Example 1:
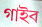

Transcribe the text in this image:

গাইব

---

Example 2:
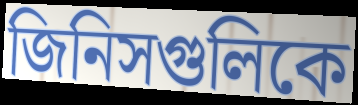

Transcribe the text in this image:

জিনিসগুলিকে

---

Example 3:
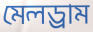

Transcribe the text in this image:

মেলড্রাম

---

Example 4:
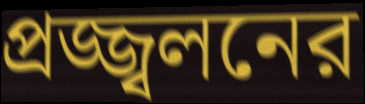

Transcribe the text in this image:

প্রজ্জ্বলনের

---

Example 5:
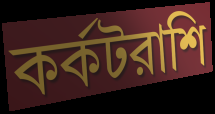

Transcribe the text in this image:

কর্কটরাশি